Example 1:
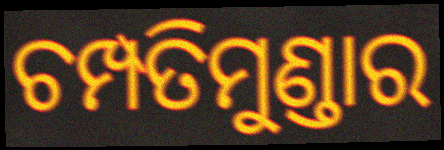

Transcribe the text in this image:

ଚମ୍ପତିମୁଣ୍ଡାର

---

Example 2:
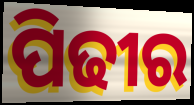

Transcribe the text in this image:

ପିଢୀର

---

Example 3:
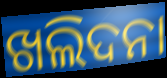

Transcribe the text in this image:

ଖଲିଦନା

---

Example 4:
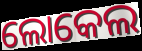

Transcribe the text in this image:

ଲୋକେଲ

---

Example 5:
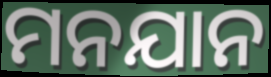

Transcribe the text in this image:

ମନଯାନ